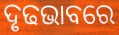
ଦୃଢଭାବରେ